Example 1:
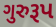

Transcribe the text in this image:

ગુરુરૂપ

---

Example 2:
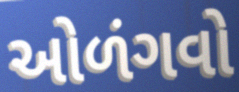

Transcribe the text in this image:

ઓળંગવો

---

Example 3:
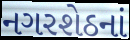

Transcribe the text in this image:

નગરશેઠનાં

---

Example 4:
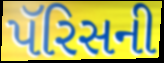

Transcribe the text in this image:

પૅરિસની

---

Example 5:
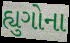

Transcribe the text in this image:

હ્યુગોના